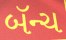
બૅન્ચ